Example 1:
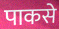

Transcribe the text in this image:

पाकसे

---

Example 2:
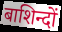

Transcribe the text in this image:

बाशिन्दों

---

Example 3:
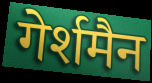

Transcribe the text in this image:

गेर्शमैन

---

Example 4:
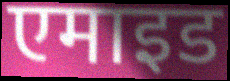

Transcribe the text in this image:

एमाइड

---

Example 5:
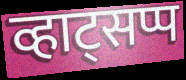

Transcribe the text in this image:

व्हाट्सप्प